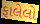
ફાલેલો